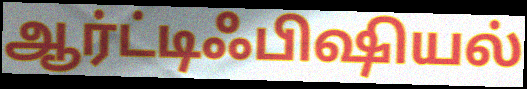
ஆர்ட்டிஃபிஷியல்